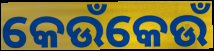
କେଉଁକେଉଁ